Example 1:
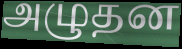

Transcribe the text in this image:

அழுதன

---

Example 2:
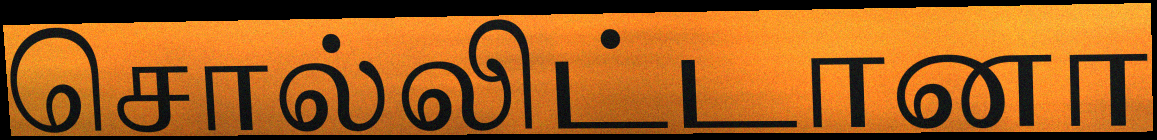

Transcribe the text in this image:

சொல்லிட்டானா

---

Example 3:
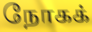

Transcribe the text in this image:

நோகக்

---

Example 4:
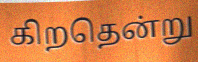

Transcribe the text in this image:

கிறதென்று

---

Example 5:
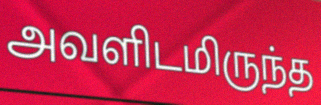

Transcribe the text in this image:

அவளிடமிருந்த